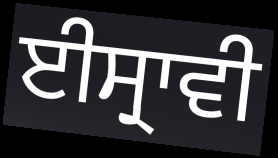
ਈਸ੍ਰਾਵੀ